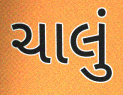
ચાલું